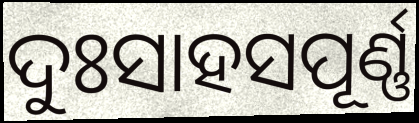
ଦୁଃସାହସପୂର୍ଣ୍ଣ